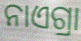
ନାଏଗ୍ରା